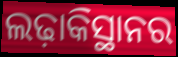
ଲଢ଼ାକିସ୍ଥାନର